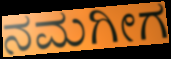
ನಮಗೀಗ